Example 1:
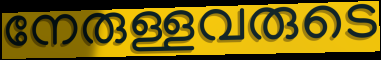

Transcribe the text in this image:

നേരുള്ളവരുടെ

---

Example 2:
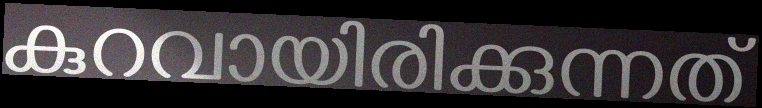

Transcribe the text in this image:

കുറവായിരിക്കുന്നത്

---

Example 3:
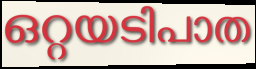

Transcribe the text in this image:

ഒറ്റയടിപാത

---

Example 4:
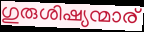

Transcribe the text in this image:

ഗുരുശിഷ്യന്മാര്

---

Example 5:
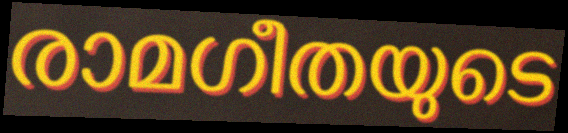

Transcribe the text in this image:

രാമഗീതയുടെ